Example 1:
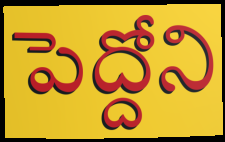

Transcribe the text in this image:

పెద్దోని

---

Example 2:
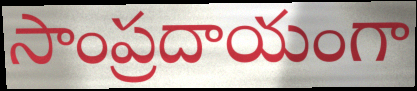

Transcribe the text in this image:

సాంప్రదాయంగా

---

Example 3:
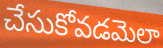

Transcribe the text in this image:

చేసుకోవడమెలా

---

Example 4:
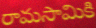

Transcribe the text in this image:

రామసామికి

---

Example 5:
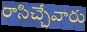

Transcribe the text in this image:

రాసిచ్చేవారు